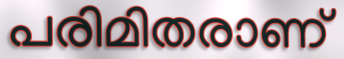
പരിമിതരാണ്